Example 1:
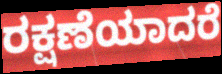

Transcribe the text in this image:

ರಕ್ಷಣೆಯಾದರೆ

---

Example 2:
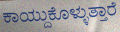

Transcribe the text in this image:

ಕಾಯ್ದುಕೊಳ್ಳುತ್ತಾರೆ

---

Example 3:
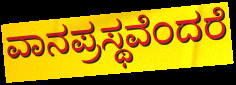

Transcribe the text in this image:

ವಾನಪ್ರಸ್ಥವೆಂದರೆ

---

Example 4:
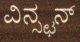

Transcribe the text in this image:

ವಿನ್ಸ್ಟನ್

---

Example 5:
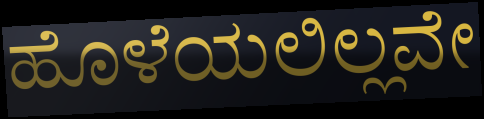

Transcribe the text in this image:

ಹೊಳೆಯಲಿಲ್ಲವೇ